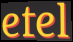
etel